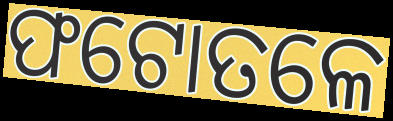
ଫଟୋତଳେ